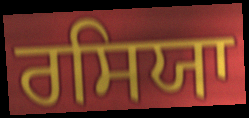
ਰਸਿਯਾ